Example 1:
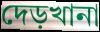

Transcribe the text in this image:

দেড়খানা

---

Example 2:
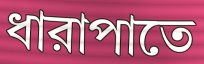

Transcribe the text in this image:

ধারাপাতে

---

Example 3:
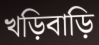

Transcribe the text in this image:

খড়িবাড়ি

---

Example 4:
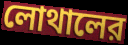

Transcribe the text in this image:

লোথালের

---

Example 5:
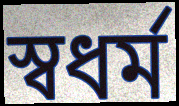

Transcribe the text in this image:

স্বধর্ম